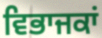
ਵਿਭਾਜਕਾਂ